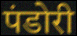
पंडोरी